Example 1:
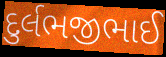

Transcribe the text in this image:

દુર્લભજીભાઈ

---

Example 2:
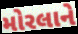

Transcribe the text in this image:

મોરલાને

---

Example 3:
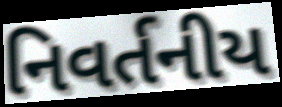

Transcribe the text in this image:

નિવર્તનીય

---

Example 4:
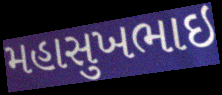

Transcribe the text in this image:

મહાસુખભાઇ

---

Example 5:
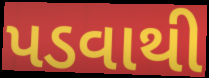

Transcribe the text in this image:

પડવાથી